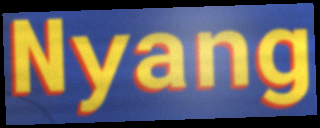
Nyang